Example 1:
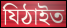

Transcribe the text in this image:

যিঠাইত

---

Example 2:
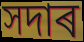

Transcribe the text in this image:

সদাৰ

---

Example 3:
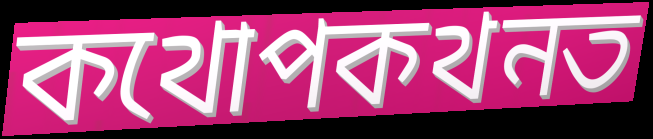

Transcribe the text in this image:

কথোপকথনত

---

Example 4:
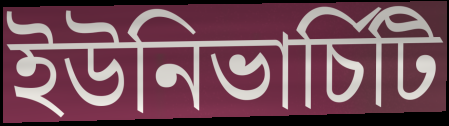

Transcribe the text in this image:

ইউনিভাৰ্চিটি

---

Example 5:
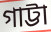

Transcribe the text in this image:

গাট্টা